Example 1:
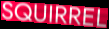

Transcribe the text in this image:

SQUIRREL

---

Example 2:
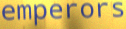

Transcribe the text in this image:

emperors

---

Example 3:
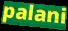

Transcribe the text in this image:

palani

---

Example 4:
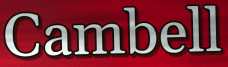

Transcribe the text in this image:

Cambell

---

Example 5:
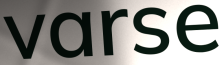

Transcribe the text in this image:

varse